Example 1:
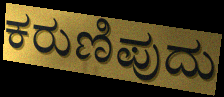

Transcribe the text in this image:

ಕರುಣಿಪುದು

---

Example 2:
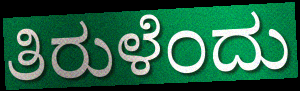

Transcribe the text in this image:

ತಿರುಳೆಂದು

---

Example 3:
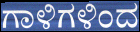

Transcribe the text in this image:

ಗಾಳಿಗಳಿಂದ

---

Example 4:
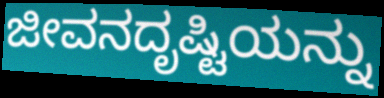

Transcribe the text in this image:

ಜೀವನದೃಷ್ಟಿಯನ್ನು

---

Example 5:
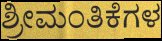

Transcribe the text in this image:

ಶ್ರೀಮಂತಿಕೆಗಳ